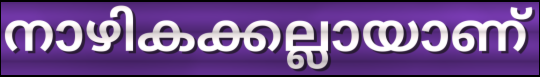
നാഴികക്കല്ലായാണ്